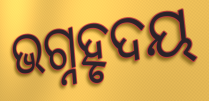
ଭଗ୍ନହୃଦୟ